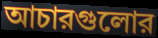
আচারগুলোর